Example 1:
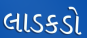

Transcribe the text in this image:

લાડકડો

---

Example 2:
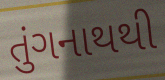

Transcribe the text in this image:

તુંગનાથથી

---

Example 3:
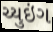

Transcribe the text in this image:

ચ્યુઇંગ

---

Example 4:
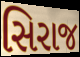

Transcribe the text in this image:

સિરાજ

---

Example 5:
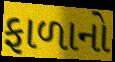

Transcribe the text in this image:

ફાળાનો